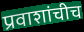
प्रवाशांचीच